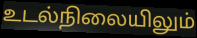
உடல்நிலையிலும்